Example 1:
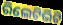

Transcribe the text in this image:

ରିଲେଟିଭିଟି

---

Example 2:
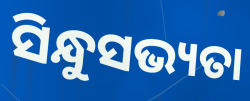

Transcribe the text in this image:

ସିନ୍ଧୁସଭ୍ୟତା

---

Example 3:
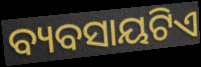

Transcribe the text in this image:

ବ୍ୟବସାୟଟିଏ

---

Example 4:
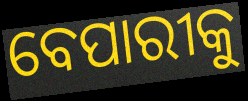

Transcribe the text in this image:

ବେପାରୀକୁ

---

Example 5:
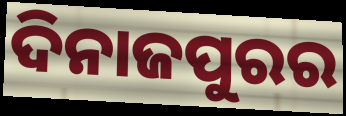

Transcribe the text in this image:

ଦିନାଜପୁରର